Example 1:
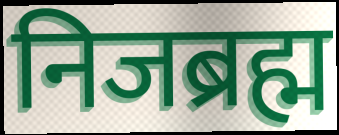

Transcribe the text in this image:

निजब्रह्म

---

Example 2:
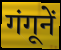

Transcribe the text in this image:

गंगूनें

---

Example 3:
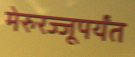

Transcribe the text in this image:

मेरुरज्जूपर्यंत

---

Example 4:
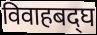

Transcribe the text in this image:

विवाहबद्घ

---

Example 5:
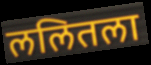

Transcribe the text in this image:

ललितला